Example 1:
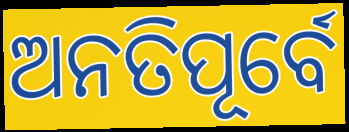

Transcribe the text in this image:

ଅନତିପୂର୍ବେ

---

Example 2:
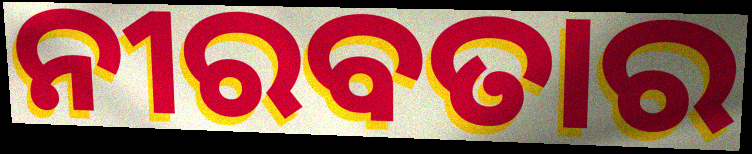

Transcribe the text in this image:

ନୀରବତାର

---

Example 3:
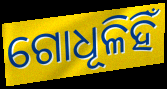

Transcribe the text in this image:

ଗୋଧୂଳିହିଁ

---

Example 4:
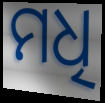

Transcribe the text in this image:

ମଧି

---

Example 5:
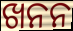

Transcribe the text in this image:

ଖନନ